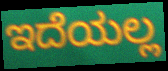
ಇದೆಯಲ್ಲ